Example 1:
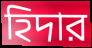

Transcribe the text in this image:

হিদার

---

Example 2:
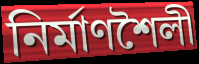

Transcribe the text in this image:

নির্মাণশৈলী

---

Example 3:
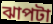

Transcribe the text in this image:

ঝাপটা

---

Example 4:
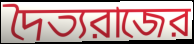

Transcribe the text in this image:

দৈত্যরাজের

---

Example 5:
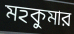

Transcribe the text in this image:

মহকুমার